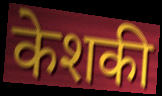
केशकी